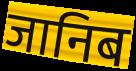
जानिब